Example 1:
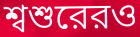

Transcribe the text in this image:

শ্বশুরেরও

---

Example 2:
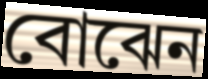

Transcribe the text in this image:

বোঝেন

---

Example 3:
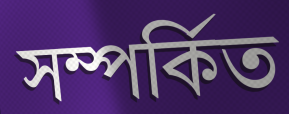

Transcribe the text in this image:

সম্পর্কিত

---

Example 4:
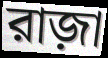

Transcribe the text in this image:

রাজ়া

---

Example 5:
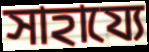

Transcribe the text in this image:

সাহায্যে